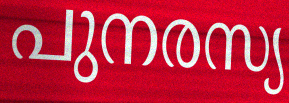
പുനരസ്യ